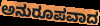
ಅನುರೂಪವಾದ